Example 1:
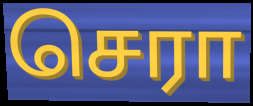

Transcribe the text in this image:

செரா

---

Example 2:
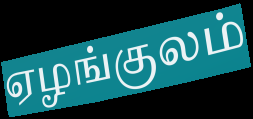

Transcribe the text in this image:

ஏழங்குலம்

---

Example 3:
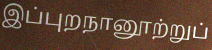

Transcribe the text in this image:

இப்புறநானூற்றுப்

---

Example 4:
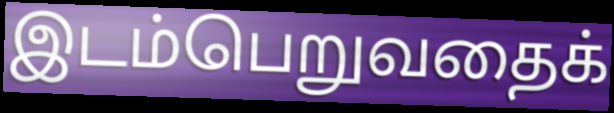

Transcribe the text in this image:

இடம்பெறுவதைக்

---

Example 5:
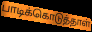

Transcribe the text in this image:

பாடிக்கொடுத்தாள்